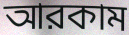
আরকাম